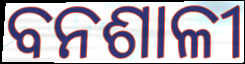
ବନଶାଳୀ